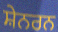
ਸ਼ੇਨਰਨ